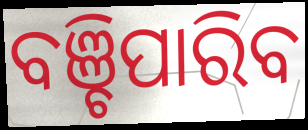
ବଞ୍ଚିପାରିବ